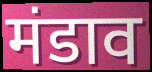
मंडाव